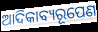
ଆଦିକାବ୍ୟରୂପେଣ